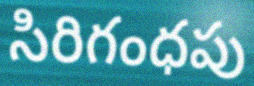
సిరిగంధపు